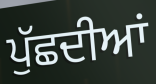
ਪੁੱਛਦੀਆਂ